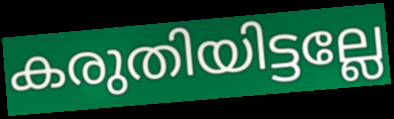
കരുതിയിട്ടല്ലേ